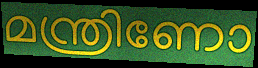
മന്ത്രിണോ